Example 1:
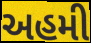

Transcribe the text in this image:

અહમી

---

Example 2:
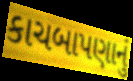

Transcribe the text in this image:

કાચબાપણાનું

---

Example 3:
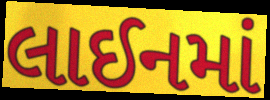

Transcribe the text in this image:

લાઈનમાં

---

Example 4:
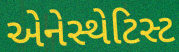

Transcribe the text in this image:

એનેસ્થેટિસ્ટ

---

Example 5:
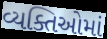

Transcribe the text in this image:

વ્યક્તિઓમાં